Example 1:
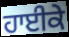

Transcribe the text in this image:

ਹਾਈਕੇ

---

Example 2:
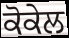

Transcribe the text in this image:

ਕੋਕੇਲ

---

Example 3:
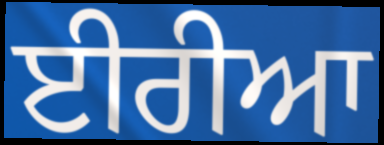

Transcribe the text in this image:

ਈਰੀਆ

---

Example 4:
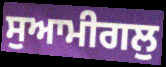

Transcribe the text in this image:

ਸੁਆਮੀਗਲੁ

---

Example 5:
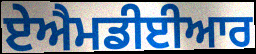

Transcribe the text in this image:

ਏਐਮਡੀਈਆਰ